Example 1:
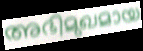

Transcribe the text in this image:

അഭിമുഖമായ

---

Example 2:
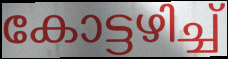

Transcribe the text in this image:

കോട്ടഴിച്ച്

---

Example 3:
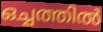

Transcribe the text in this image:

ഒച്ചത്തിൽ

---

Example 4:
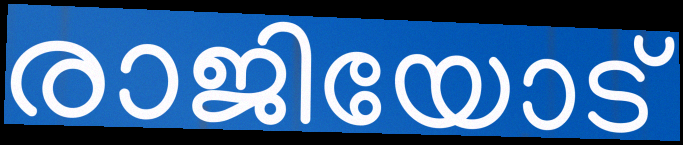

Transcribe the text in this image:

രാജിയോട്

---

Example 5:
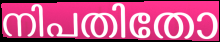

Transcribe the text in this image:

നിപതിതോ